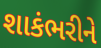
શાકંભરીને